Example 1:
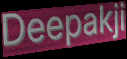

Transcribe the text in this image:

Deepakji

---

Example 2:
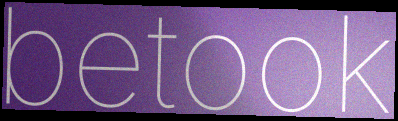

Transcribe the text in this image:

betook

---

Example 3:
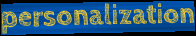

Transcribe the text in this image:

personalization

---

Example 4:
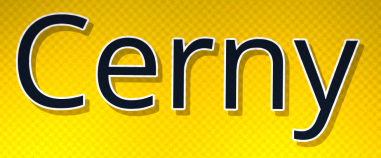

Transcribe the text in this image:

Cerny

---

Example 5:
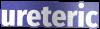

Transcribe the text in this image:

ureteric